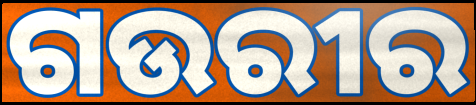
ଗଉରୀର